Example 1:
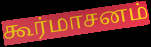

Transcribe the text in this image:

கூர்மாசனம்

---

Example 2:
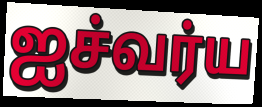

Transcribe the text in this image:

ஐச்வர்ய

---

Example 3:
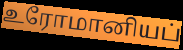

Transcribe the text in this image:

உரோமானியப்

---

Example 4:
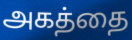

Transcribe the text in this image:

அகத்தை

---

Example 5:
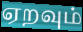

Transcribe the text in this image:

ஏறவும்